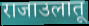
राजाउलातू